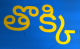
తొక్కి